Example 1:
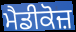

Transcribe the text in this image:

ਮੈਡੀਕੋਜ਼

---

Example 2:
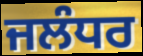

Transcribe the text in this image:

ਜਲੰਧਰ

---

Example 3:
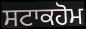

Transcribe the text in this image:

ਸਟਾਕਹੋਮ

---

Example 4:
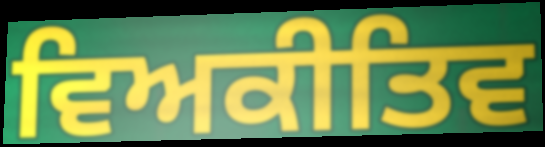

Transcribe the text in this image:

ਵਿਅਕੀਤਿਵ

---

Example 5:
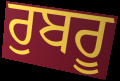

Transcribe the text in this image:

ਰੁਬਰੂ